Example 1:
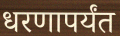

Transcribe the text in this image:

धरणापर्यंत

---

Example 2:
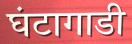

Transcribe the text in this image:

घंटागाडी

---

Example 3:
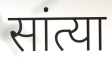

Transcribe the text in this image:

सांत्या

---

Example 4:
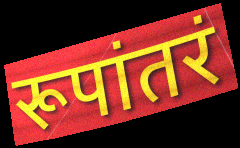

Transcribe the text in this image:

रूपांतरं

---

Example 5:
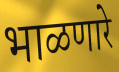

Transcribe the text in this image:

भाळणारे